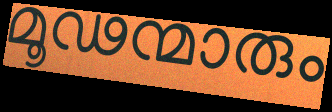
മൂഢന്മാരും